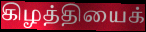
கிழத்தியைக்